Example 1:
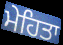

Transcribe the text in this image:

ਮੇਹਿਤਾ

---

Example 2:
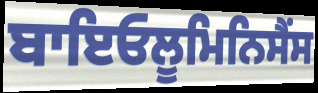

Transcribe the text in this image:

ਬਾਇਓਲੂਮਿਨਿਸੈਂਸ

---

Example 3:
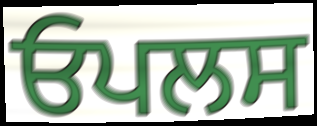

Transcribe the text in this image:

ਓਪਲਸ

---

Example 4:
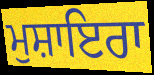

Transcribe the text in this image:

ਮੁਸ਼ਾਇਰਾ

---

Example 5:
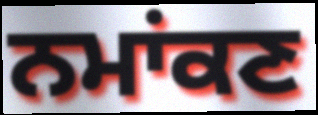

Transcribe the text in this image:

ਨਮਾਂਕਣ